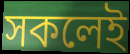
সকলেই